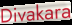
Divakara